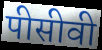
पीसीवी